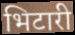
भिटारी